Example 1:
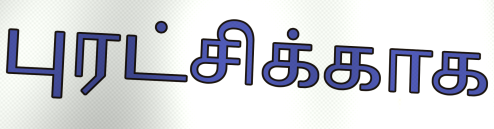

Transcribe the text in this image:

புரட்சிக்காக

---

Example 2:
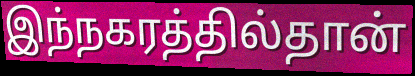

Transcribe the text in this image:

இந்நகரத்தில்தான்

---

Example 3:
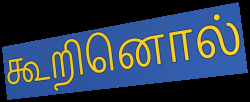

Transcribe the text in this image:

கூறினொல்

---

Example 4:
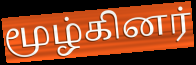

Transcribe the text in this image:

மூழ்கினர்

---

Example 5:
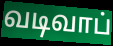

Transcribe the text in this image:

வடிவாப்